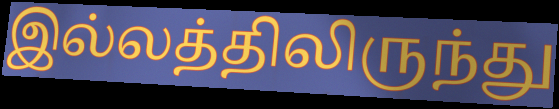
இல்லத்திலிருந்து